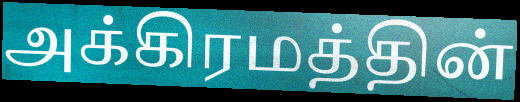
அக்கிரமத்தின்